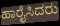
ಹಾರೈಸಿದರು